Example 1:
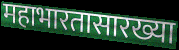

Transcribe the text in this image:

महाभारतासारख्या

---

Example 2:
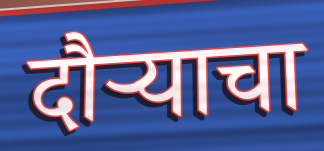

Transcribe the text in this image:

दौऱ्याचा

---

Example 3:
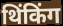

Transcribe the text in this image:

थिंकिंग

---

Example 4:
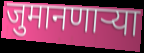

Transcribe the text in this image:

जुमानणार्‍या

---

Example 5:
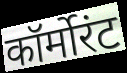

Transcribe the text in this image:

कॉर्मोरंट